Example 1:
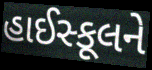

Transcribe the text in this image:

હાઈસ્કૂલને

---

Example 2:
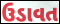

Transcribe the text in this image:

ઉડાવત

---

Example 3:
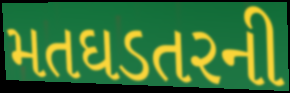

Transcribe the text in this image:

મતઘડતરની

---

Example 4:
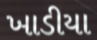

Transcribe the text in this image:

ખાડીયા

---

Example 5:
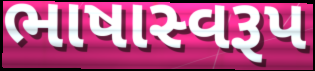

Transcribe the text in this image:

ભાષાસ્વરૂપ